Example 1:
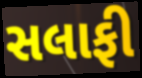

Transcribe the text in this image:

સલાફી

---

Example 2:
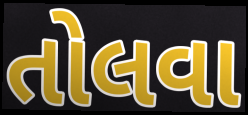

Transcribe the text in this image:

તોલવા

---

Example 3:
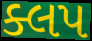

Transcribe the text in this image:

ક્લપ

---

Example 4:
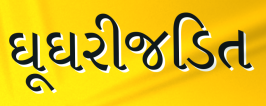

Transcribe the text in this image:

ઘૂઘરીજડિત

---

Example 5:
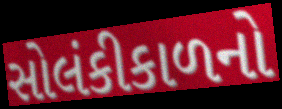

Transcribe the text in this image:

સોલંકીકાળનો